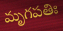
మృగపతిః